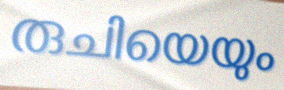
രുചിയെയും